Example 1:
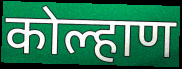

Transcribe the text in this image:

कोल्हाण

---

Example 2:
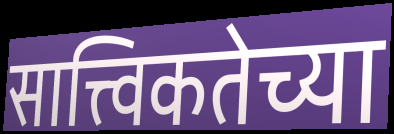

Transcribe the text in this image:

सात्त्विकतेच्या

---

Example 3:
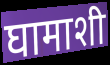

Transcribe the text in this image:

घामाशी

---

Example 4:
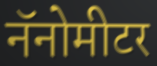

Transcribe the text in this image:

नॅनोमीटर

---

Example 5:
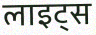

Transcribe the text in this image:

लाइट्स